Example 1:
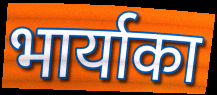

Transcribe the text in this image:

भार्याका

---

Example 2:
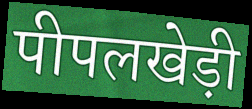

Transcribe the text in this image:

पीपलखेड़ी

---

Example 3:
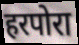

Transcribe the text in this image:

हरपोरा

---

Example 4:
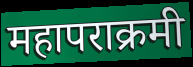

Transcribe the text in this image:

महापराक्रमी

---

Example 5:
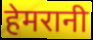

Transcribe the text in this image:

हेमरानी